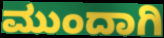
ಮುಂದಾಗಿ